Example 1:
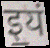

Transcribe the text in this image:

इ॒यं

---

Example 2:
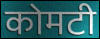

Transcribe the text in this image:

कोमटी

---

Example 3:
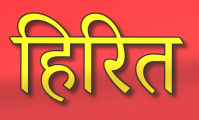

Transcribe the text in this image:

हिरित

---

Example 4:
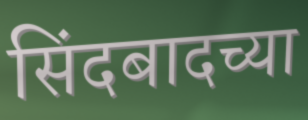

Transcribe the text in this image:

सिंदबादच्या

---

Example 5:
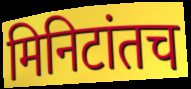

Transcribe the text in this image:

मिनिटांतच